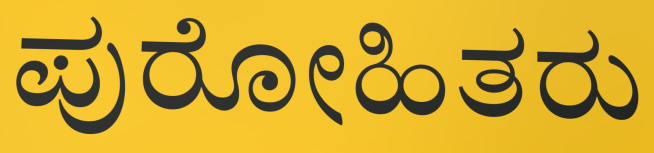
ಪುರೋಹಿತರು